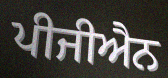
ਪੀਜੀਐਨ